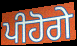
ਪੀਹੋਗੇ